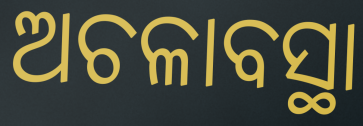
ଅଚଳାବସ୍ଥା